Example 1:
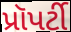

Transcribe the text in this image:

પ્રૉપર્ટી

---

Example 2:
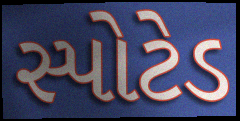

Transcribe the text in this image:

સ્પોટેડ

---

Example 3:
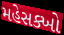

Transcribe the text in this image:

મહેસક્ખો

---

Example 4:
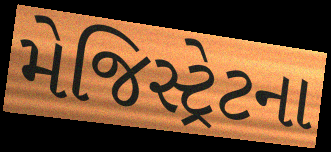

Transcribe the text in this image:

મેજિસ્ટ્રેટના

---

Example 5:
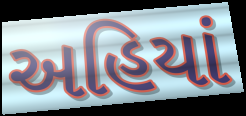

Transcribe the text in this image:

અહિયાં